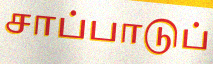
சாப்பாடுப்